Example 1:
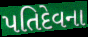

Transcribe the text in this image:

પતિદેવના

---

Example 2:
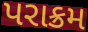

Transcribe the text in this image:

પરાક્રમ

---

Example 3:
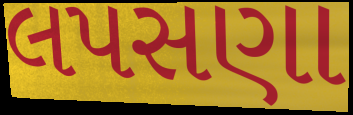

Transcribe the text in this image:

લપસણા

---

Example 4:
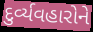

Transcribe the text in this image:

દુર્વ્યવહારોને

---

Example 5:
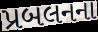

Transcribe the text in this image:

પ્રબલનના